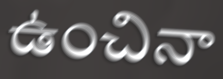
ఉంచినా